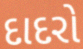
દાદરો